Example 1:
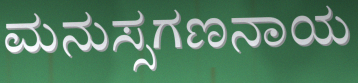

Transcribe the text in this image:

ಮನುಸ್ಸಗಣನಾಯ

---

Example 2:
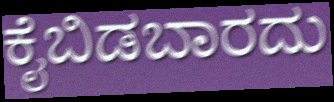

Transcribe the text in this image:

ಕೈಬಿಡಬಾರದು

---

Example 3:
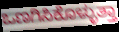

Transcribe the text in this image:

ಒಣಗಿಸಿಕೊಳ್ಳುತ್ತಾ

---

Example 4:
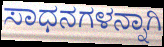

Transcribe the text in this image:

ಸಾಧನಗಳನ್ನಾಗಿ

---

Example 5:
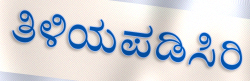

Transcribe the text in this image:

ತಿಳಿಯಪಡಿಸಿರಿ